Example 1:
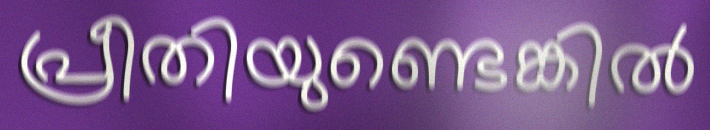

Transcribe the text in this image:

പ്രീതിയുണ്ടെങ്കിൽ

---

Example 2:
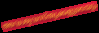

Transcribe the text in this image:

അവശ്യവസ്തുക്കളുടെയും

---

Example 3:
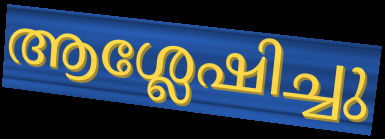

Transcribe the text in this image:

ആശ്ലേഷിച്ചു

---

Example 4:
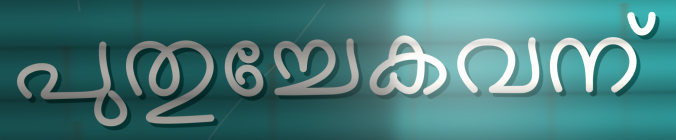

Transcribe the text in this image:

പുതുച്ചേകവന്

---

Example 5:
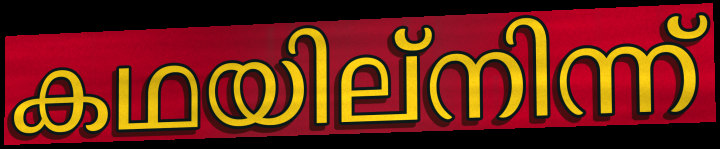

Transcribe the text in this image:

കഥയില്നിന്ന്